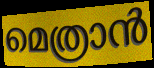
മെത്രാൻ